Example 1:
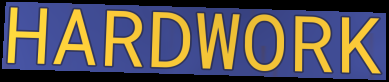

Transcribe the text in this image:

HARDWORK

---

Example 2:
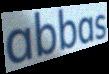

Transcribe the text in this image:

abbas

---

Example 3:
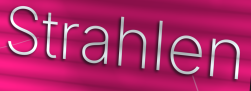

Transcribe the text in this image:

Strahlen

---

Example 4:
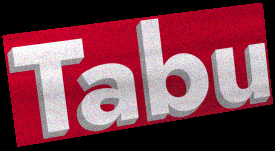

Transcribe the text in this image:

Tabu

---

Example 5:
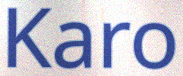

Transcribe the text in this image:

Karo